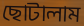
ছোটালাম